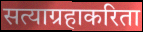
सत्याग्रहाकरिता